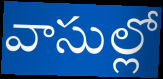
వాసుల్లో